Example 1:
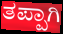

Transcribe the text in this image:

ತಪ್ಪಾಗಿ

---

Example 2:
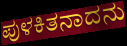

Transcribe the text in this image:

ಪುಳಕಿತನಾದನು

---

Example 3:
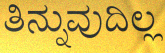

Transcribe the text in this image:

ತಿನ್ನುವುದಿಲ್ಲ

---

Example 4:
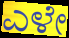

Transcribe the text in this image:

ಎಳೇ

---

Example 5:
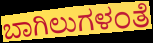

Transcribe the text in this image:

ಬಾಗಿಲುಗಳಂತೆ